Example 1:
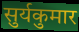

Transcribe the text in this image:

सुर्यकुमार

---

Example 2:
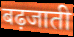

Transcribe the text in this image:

बढ़जाती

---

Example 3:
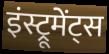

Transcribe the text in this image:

इंस्ट्रूमेंट्स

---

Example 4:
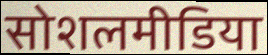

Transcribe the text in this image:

सोशलमीडिया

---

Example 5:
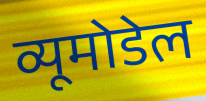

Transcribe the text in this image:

व्यूमोडेल